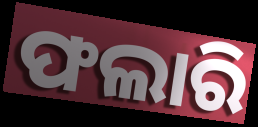
ଫଲାରି